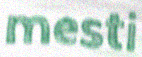
mesti